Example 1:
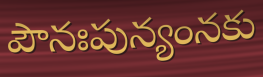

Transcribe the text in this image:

పౌనఃపున్యంనకు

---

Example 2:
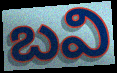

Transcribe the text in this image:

బవి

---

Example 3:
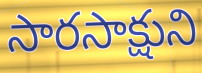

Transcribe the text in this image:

సారసాక్షుని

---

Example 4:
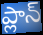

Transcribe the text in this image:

ప్లాన్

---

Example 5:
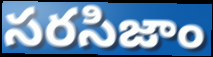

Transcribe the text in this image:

సరసిజాం